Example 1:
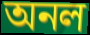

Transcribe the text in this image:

অনল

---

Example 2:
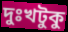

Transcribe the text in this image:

দুঃখটুকু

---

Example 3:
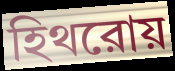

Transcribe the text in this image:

হিথরোয়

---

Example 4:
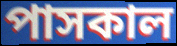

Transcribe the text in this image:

পাসকাল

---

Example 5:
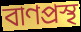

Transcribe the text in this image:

বাণপ্রস্থ